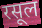
रसूल